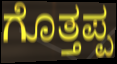
ಗೊತ್ತಪ್ಪ